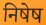
निषेष